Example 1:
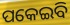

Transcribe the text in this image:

ପକେଇବି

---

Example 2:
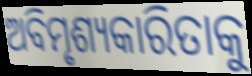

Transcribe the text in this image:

ଅବିମୃଶ୍ୟକାରିତାକୁ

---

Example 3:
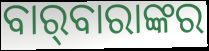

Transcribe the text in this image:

ବାର୍‌ବାରାଙ୍କର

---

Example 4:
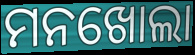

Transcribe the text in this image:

ମନଖୋଲା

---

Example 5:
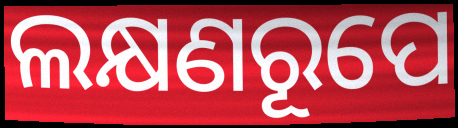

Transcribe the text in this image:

ଲକ୍ଷଣରୂପେ